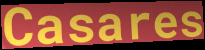
Casares